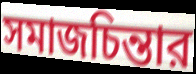
সমাজচিন্তার